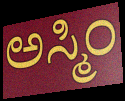
ಅಸ್ಮಿಂ